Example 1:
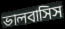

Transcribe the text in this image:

ভালবাসিস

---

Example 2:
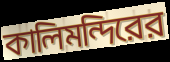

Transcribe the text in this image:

কালিমন্দিরের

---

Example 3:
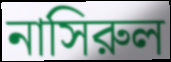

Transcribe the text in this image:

নাসিরুল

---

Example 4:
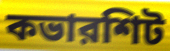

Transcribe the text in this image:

কভারশিট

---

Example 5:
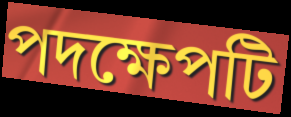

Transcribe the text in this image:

পদক্ষেপটি